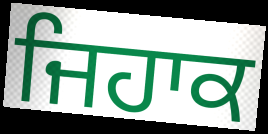
ਜਿਹਾਕ